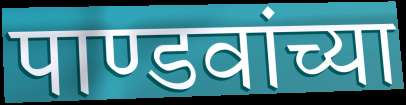
पाण्डवांच्या